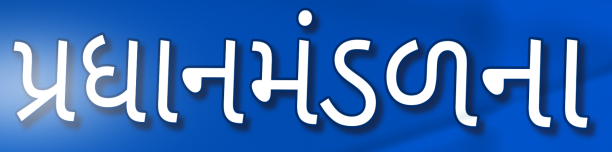
પ્રધાનમંડળના